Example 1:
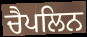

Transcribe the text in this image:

ਚੈਪਲਿਨ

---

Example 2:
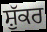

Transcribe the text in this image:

ਸ਼ੁੱਕਰ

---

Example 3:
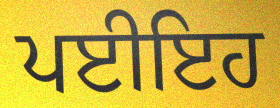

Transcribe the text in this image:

ਪਈਇਹ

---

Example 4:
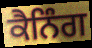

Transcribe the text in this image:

ਕੈਨਿੰਗ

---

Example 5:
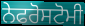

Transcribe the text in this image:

ਨੇਫਰੋਸਟੋਮੀ